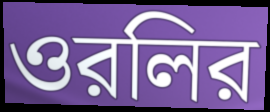
ওরলির